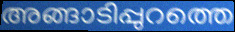
അങ്ങാടിപ്പുറത്തെ